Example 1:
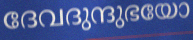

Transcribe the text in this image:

ദേവദുന്ദുഭയോ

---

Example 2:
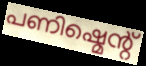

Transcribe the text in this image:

പണിഷ്മെന്റ്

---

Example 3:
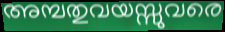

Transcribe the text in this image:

അമ്പതുവയസ്സുവരെ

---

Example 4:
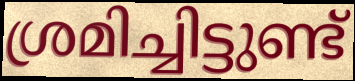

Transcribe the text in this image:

ശ്രമിച്ചിട്ടുണ്ട്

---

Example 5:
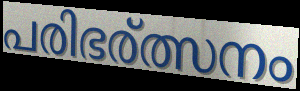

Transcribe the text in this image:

പരിഭര്ത്സനം